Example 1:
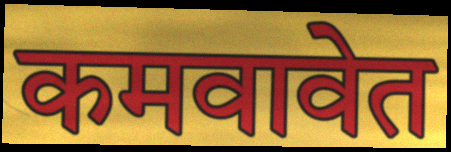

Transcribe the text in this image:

कमवावेत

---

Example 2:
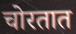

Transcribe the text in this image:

चोरतात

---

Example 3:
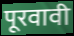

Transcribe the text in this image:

पूरवावी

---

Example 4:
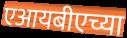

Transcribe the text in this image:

एआयबीएच्या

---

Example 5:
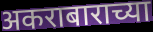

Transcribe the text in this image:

अकराबाराच्या